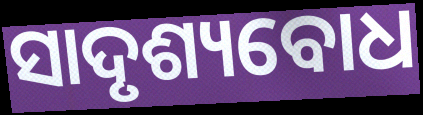
ସାଦୃଶ୍ୟବୋଧ